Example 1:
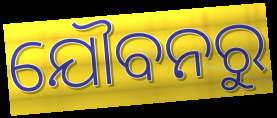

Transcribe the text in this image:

ଯୌବନରୁ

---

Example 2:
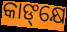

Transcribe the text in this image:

କାଙ୍‌କ୍ଷେ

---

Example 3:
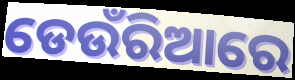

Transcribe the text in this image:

ଡେଉଁରିଆରେ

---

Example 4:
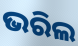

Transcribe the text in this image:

ଭରିଲ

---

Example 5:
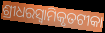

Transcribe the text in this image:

ଶ୍ରୀଧରସ୍ଵାମିକୃତଟୀକା